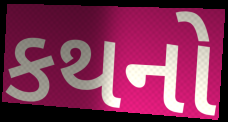
કથનો